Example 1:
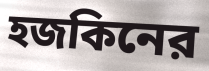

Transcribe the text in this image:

হজকিনের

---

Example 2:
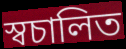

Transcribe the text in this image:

স্বচালিত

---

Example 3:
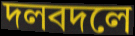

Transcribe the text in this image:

দলবদলে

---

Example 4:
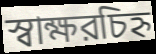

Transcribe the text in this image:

স্বাক্ষরচিহ্ন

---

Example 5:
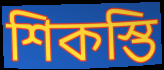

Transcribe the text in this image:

শিকস্তি